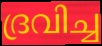
ദ്രവിച്ച